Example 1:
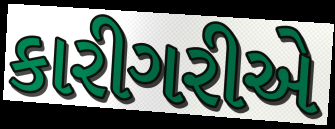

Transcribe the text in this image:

કારીગરીએ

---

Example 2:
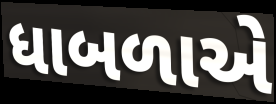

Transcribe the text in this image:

ધાબળાએ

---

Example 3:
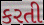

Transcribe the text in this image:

કરતી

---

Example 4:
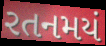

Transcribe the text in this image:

રતનમયં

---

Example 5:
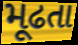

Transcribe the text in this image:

મૂઢતા